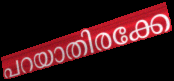
പറയാതിരക്കേ